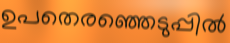
ഉപതെരഞ്ഞെടുപ്പിൽ